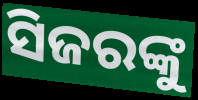
ସିଜରଙ୍କୁ